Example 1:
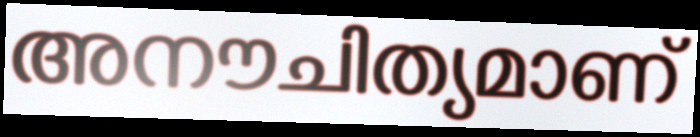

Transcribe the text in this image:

അനൗചിത്യമാണ്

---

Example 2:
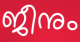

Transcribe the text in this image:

ജീനും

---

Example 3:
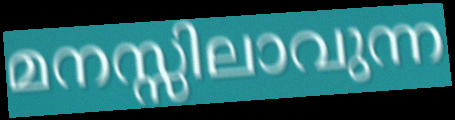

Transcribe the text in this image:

മനസ്സിലാവുന്ന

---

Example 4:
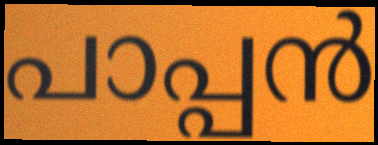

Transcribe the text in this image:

പാപ്പൻ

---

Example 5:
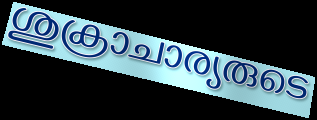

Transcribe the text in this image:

ശുക്രാചാര്യരുടെ